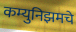
कम्युनिझमचे